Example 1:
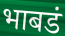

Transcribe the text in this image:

भाबडं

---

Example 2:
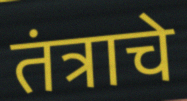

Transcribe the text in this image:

तंत्राचे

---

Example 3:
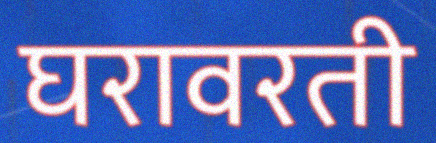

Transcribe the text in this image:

घरावरती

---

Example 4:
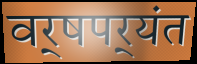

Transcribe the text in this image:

वर्षपर्यंत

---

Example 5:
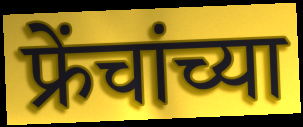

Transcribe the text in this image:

फ्रेंचांच्या